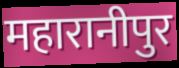
महारानीपुर